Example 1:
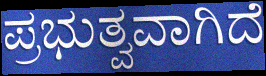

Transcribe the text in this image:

ಪ್ರಭುತ್ವವಾಗಿದೆ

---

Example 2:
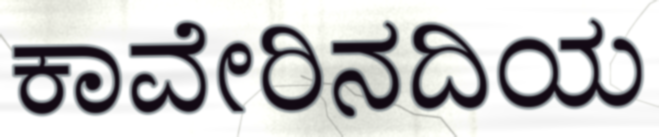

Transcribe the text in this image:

ಕಾವೇರಿನದಿಯ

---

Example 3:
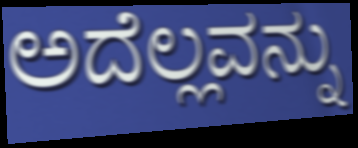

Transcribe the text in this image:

ಅದೆಲ್ಲವನ್ನು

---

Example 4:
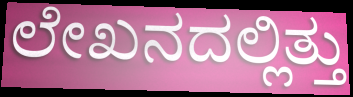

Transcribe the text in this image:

ಲೇಖನದಲ್ಲಿತ್ತು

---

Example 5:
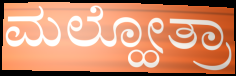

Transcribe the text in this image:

ಮಲ್ಹೋತ್ರಾ